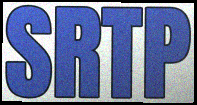
SRTP